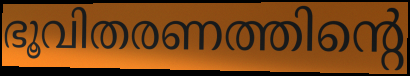
ഭൂവിതരണത്തിന്റെ